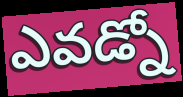
ఎవడ్నో